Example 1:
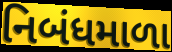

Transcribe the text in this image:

નિબંધમાળા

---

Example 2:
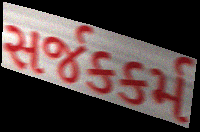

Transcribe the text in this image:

સર્જકકર્મ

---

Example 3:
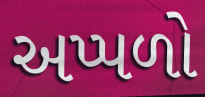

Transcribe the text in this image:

અપ્પળો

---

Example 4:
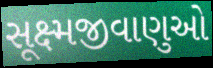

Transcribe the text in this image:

સૂક્ષ્મજીવાણુઓ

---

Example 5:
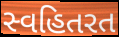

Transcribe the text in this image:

સ્વહિતરત